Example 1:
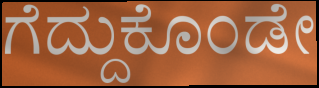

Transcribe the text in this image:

ಗೆದ್ದುಕೊಂಡೇ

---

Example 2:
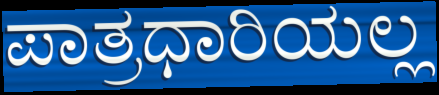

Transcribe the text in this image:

ಪಾತ್ರಧಾರಿಯಲ್ಲ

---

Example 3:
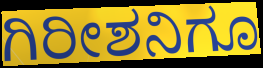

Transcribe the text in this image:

ಗಿರೀಶನಿಗೂ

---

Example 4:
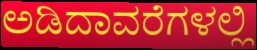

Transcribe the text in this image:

ಅಡಿದಾವರೆಗಳಲ್ಲಿ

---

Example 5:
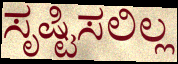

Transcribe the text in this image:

ಸೃಷ್ಟಿಸಲಿಲ್ಲ